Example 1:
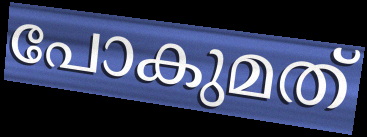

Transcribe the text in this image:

പോകുമത്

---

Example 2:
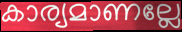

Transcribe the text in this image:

കാര്യമാണല്ലേ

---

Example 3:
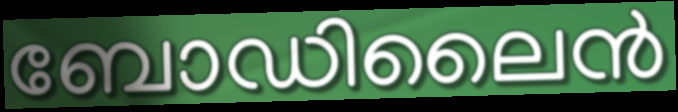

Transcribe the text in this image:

ബോഡിലൈൻ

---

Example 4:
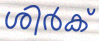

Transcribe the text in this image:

ശിർക്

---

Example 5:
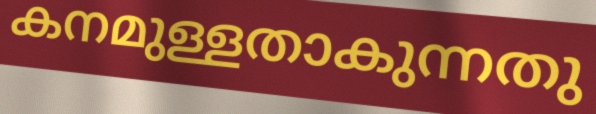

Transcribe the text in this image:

കനമുള്ളതാകുന്നതു